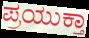
ಪ್ರಯುಕ್ತಾ